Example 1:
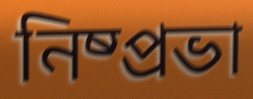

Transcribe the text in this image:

নিষ্প্রভা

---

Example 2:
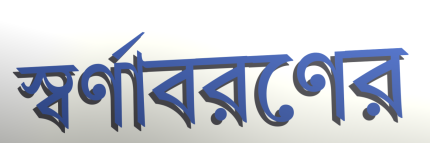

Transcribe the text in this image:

স্বর্ণাবরণের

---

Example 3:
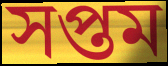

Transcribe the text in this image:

সপ্তম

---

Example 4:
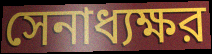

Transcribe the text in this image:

সেনাধ্যক্ষর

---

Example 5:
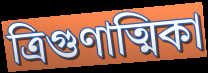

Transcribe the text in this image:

ত্রিগুণাত্মিকা